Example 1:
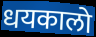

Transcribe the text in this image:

धयकालो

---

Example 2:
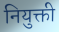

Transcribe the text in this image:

नियुक्ती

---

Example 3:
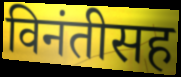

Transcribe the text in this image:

विनंतीसह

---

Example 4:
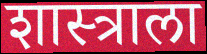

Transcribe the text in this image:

शास्त्राला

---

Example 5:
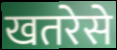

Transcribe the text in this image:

खतरेसे